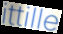
ittille